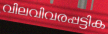
വിലവിവരപ്പട്ടിക